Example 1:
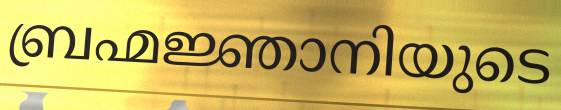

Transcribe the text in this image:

ബ്രഹ്മജ്ഞാനിയുടെ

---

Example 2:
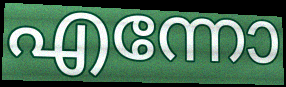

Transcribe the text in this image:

എന്നോ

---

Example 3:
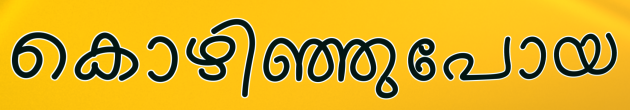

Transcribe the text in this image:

കൊഴിഞ്ഞുപോയ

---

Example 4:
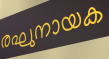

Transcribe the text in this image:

രഘുനായക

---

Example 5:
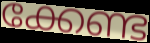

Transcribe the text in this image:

ക്കേണ്ട